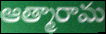
ఆత్మారామ